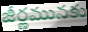
జీర్ణమునకు